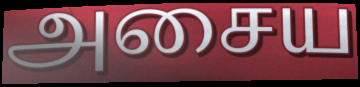
அசைய